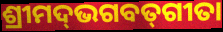
ଶ୍ରୀମଦ୍‌ଭଗବତ୍‌ଗୀତା